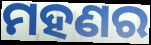
ମହଣର